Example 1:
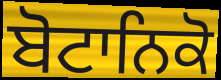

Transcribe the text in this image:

ਬੋਟਾਨਿਕੋ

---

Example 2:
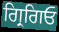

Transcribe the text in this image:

ਗ੍ਰਿਗਿਓ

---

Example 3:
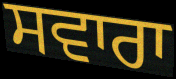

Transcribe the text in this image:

ਸਵਾਰਾ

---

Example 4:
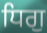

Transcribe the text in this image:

ਧਿਗੁ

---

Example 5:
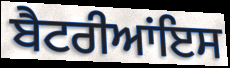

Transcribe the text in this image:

ਬੈਟਰੀਆਂਇਸ